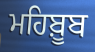
ਮਹਿਬ਼ੂਬ